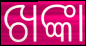
ଖଙ୍କା